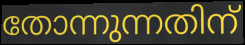
തോന്നുന്നതിന്